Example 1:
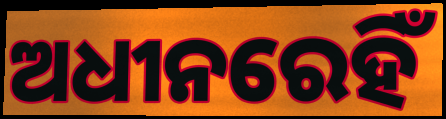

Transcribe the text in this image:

ଅଧୀନରେହିଁ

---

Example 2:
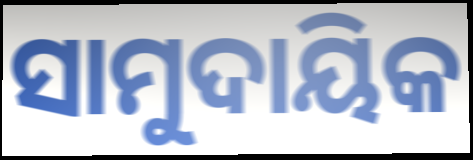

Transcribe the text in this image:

ସାମୁଦାୟିକ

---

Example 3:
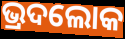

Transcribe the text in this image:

ଭ୍ରଦଲୋକ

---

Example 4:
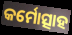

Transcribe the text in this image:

କର୍ମୋତ୍ସାହ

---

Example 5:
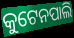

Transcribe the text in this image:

କୁଟେନପାଲି